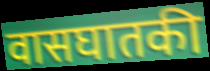
वासघातकी